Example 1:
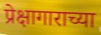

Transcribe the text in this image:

प्रेक्षागाराच्या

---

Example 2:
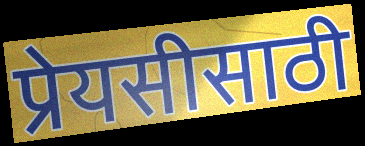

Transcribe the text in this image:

प्रेयसीसाठी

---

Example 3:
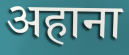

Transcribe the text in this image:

अहाना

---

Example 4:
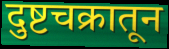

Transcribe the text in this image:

दुष्टचक्रातून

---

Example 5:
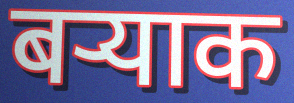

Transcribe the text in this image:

बऱ्याक